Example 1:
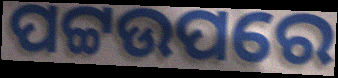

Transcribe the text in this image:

ପଟ୍ଟଉପରେ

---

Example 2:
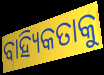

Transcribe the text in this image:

ବାହ୍ୟିକତାକୁ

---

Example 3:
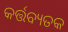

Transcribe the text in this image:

କର୍ତ୍ତବ୍ୟତକ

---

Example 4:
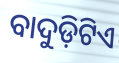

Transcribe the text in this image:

ବାଦୁଡ଼ିଟିଏ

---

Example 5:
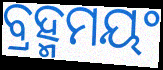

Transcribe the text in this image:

ବ୍ରହ୍ମମୟଂ